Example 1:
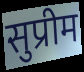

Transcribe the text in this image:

सुप्रीम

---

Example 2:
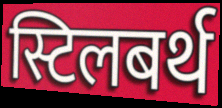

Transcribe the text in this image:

स्टिलबर्थ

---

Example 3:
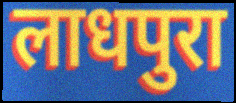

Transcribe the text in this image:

लाधपुरा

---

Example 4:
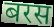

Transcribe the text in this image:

बरस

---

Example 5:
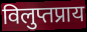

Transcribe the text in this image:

विलुप्तप्राय